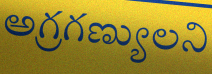
అగ్రగణ్యులని